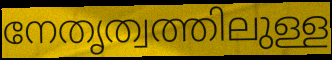
നേതൃത്വത്തിലുള്ള